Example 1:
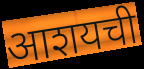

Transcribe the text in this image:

आशयची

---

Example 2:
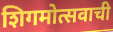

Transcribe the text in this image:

शिगमोत्सवाची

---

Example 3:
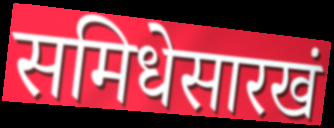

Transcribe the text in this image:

समिधेसारखं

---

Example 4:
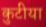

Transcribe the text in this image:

कुटीया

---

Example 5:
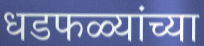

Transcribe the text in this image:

धडफळ्यांच्या